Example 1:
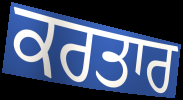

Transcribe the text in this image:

ਕਰਤਾਰ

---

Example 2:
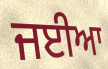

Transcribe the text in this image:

ਜਈਆ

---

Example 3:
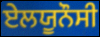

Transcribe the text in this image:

ਏਲਯੂਨੌਸੀ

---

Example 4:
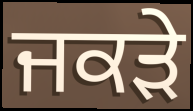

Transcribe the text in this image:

ਜਕੜੇ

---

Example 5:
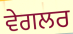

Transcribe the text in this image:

ਵੇਗਲਰ